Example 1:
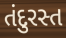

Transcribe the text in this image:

તંદુરસ્ત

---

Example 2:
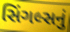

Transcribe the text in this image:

સિંગલ્સનું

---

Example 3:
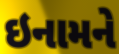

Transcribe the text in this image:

ઇનામને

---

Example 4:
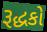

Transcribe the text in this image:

રૂદ્ધકો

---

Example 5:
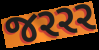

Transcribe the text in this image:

જરરર